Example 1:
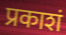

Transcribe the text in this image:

प्रकाशं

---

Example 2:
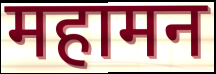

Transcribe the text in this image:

महामन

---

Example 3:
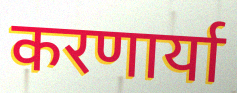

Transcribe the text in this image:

करणार्या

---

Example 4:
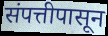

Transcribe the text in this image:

संपत्तीपासून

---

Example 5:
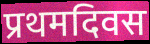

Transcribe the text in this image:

प्रथमदिवस